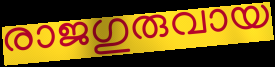
രാജഗുരുവായ